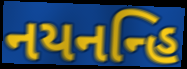
નયનન્હિ